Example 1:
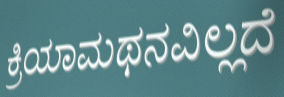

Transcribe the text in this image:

ಕ್ರಿಯಾಮಥನವಿಲ್ಲದೆ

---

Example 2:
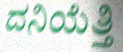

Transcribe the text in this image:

ದನಿಯೆತ್ತಿ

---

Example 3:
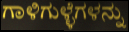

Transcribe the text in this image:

ಗಾಳಿಗುಳ್ಳೆಗಳನ್ನು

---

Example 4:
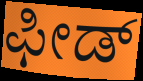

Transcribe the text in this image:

ಫೀಡ್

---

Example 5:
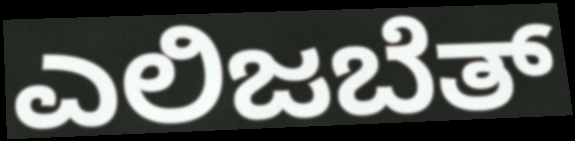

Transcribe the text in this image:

ಎಲಿಜಬೆತ್